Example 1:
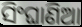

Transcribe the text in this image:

ସିଂଘାଣିଆ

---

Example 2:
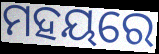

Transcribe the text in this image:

ମହୟରେ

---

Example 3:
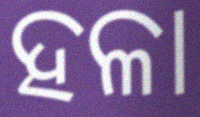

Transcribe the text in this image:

ହଳା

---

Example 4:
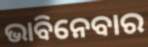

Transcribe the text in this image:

ଭାବିନେବାର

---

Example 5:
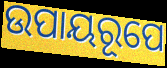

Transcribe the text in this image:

ଉପାୟରୂପେ